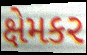
ક્ષેમકર